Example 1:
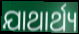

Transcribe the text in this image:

ଯାଥାର୍ଥ୍ୟ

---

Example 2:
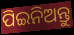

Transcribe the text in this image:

ପିଇନିଅନ୍ତୁ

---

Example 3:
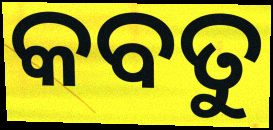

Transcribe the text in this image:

କବତୁ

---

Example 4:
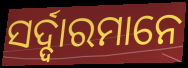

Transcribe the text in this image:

ସର୍ଦ୍ଦାରମାନେ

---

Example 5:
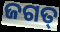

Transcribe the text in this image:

ଜଗତ୍